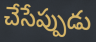
చేసేప్పుడు